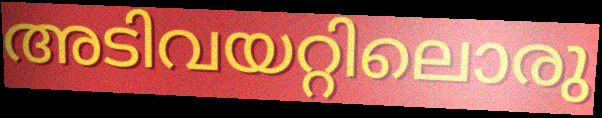
അടിവയറ്റിലൊരു